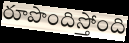
రూపొందిస్తోంది